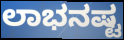
ಲಾಭನಷ್ಟ